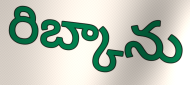
రిబ్కాను